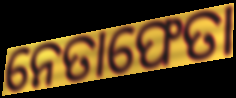
ନେତାଫେତା